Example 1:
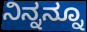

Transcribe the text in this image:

ನಿನ್ನನ್ನೂ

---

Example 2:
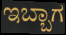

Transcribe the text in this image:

ಇಬ್ಬಾಗ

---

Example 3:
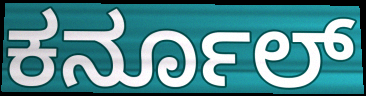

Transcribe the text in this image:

ಕರ್ನೂಲ್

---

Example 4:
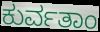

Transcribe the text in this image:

ಕುರ್ವತಾಂ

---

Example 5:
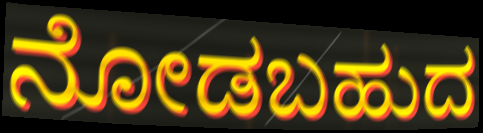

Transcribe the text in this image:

ನೋಡಬಹುದ